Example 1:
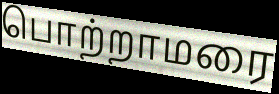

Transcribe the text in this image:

பொற்றாமரை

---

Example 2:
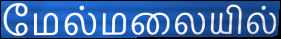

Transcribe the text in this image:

மேல்மலையில்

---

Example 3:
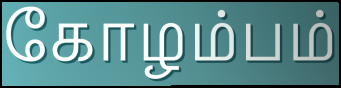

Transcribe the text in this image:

கோழம்பம்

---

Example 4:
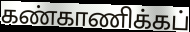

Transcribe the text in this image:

கண்காணிக்கப்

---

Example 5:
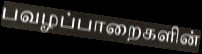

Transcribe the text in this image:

பவழப்பாறைகளின்